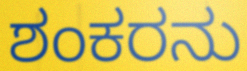
ಶಂಕರನು